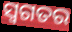
ସ୍ୱଗତର